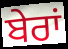
ਬੇਰਾਂ